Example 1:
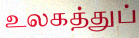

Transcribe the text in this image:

உலகத்துப்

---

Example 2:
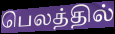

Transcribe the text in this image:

பெலத்தில்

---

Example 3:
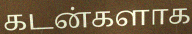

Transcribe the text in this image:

கடன்களாக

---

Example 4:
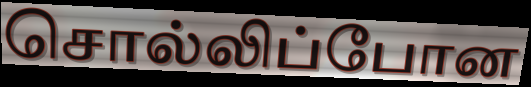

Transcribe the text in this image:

சொல்லிப்போன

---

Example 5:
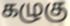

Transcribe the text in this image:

கழுகு